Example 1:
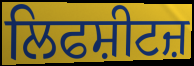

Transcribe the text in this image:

ਲਿਫਸ਼ੀਟਜ਼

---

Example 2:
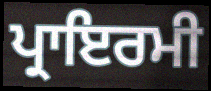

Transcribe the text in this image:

ਪ੍ਰਾਇਰਮੀ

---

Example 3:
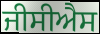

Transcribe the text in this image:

ਜੀਸੀਐਸ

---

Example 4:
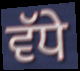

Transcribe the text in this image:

ਵੱਧੇ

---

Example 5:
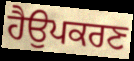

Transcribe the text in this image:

ਹੈਉਪਕਰਣ